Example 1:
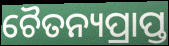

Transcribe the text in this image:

ଚୈତନ୍ୟପ୍ରାପ୍ତ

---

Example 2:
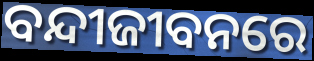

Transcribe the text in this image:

ବନ୍ଦୀଜୀବନରେ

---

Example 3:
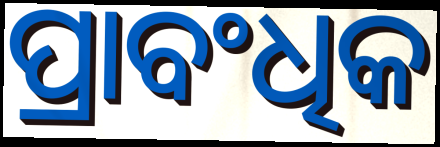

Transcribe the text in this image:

ପ୍ରାବଂଧିକ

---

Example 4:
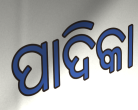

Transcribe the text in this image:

ପାଦିକା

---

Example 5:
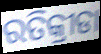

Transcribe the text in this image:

ରତିକ୍ରୀଡା